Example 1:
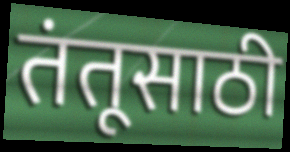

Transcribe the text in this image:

तंतूसाठी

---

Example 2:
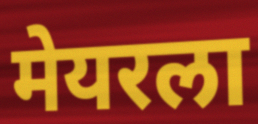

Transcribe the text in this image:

मेयरला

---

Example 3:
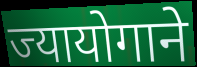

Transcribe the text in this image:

ज्यायोगाने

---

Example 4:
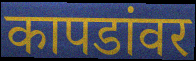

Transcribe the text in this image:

कापडांवर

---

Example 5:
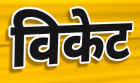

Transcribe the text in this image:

विकेट